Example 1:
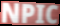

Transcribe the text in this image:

NPIC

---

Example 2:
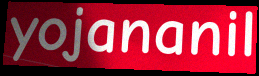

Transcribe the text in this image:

yojananil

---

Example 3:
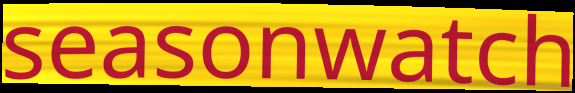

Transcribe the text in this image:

seasonwatch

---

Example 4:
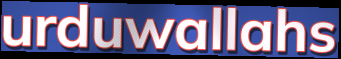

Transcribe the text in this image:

urduwallahs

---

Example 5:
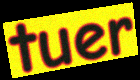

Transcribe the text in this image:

tuer